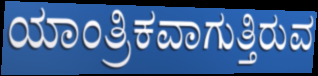
ಯಾಂತ್ರಿಕವಾಗುತ್ತಿರುವ